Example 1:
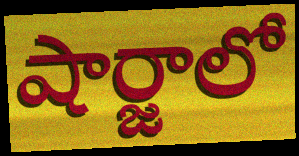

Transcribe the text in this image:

షార్జాలో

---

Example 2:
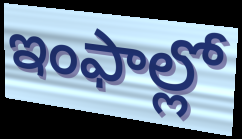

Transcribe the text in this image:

ఇంఫాల్లో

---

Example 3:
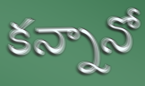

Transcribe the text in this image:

కన్నానో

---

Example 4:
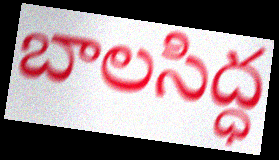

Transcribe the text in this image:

బాలసిద్ధ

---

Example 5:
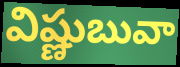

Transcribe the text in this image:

విష్ణుబువా